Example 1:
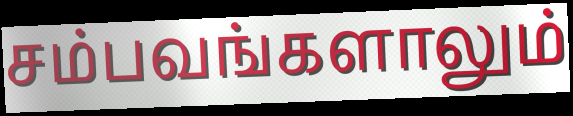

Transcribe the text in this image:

சம்பவங்களாலும்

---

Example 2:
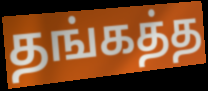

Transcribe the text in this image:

தங்கத்த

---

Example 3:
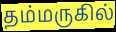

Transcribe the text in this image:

தம்மருகில்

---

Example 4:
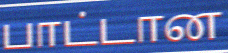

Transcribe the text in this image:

பாட்டான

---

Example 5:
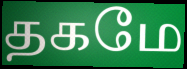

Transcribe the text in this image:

தகமே